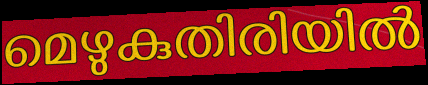
മെഴുകുതിരിയിൽ